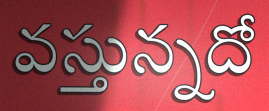
వస్తున్నదో